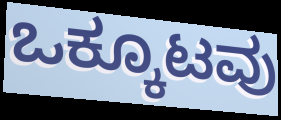
ಒಕ್ಕೂಟವು